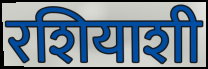
रशियाशी